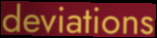
deviations